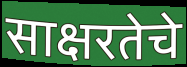
साक्षरतेचे